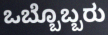
ಒಬ್ಬೊಬ್ಬರು